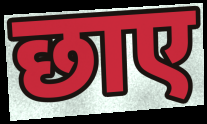
छाए